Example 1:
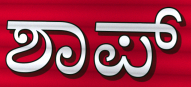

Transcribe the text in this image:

ಶಾಪ್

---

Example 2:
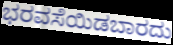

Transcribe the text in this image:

ಭರವಸೆಯಿಡಬಾರದು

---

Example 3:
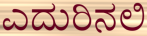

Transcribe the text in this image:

ಎದುರಿನಲಿ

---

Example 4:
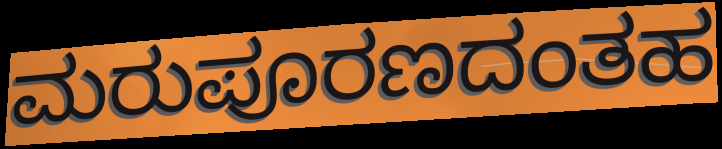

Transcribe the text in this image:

ಮರುಪೂರಣದಂತಹ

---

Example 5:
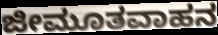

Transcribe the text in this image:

ಜೀಮೂತವಾಹನ